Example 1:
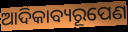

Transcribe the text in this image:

ଆଦିକାବ୍ୟରୂପେଣ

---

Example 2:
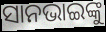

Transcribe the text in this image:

ସାନଭାଇଙ୍କୁ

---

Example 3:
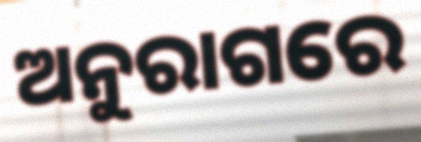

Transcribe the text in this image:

ଅନୁରାଗରେ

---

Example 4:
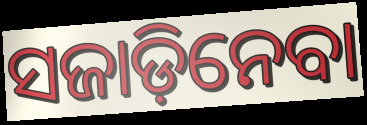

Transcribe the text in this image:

ସଜାଡ଼ିନେବା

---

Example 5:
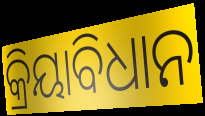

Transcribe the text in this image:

କ୍ରିୟାବିଧାନ